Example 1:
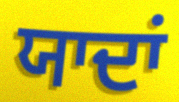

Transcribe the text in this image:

ਯਾਦਾਂ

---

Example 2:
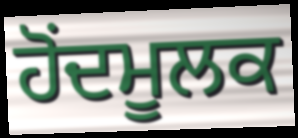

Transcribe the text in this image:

ਹੋਂਦਮੂਲਕ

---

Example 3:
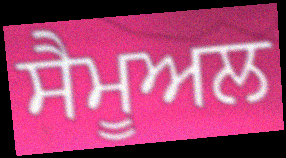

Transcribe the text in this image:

ਸੈਮੂਅਲ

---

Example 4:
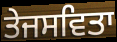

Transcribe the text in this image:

ਤੇਜਸਵਿਤਾ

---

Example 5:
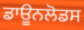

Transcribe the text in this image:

ਡਾਊਨਲੋਡਸ